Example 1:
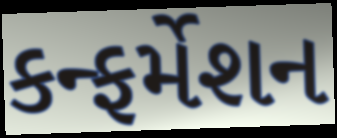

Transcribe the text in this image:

કન્ફર્મેશન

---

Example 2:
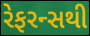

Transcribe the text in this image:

રેફરન્સથી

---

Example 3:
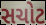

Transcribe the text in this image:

સચોટ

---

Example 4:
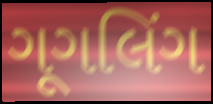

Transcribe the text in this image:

ગૂગલિંગ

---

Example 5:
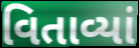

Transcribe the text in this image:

વિતાવ્યાં